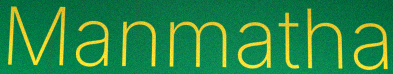
Manmatha